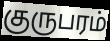
குருபரம்